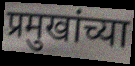
प्रमुखांच्या